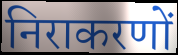
निराकरणों